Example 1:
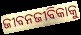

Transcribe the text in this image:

ଜୀବନଜୀବିକାକୁ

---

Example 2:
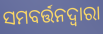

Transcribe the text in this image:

ସମବର୍ତ୍ତନଦ୍ୱାରା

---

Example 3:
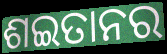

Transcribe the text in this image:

ଶଇତାନର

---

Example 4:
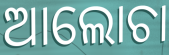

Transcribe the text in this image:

ଆଲୋଚା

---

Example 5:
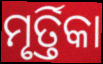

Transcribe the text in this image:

ମୃର୍ତ୍ତିକା